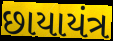
છાયાયંત્ર